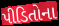
પીડિતોના